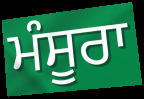
ਮੰਸੂਰਾ